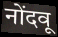
नोंदवू